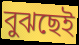
বুঝছেই